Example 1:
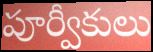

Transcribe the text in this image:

పూర్వీకులు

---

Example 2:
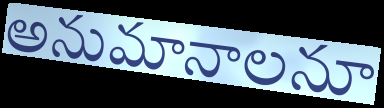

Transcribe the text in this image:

అనుమానాలనూ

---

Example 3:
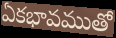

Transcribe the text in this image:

ఏకభావముతో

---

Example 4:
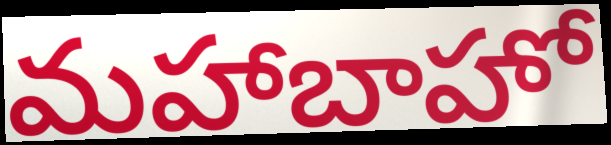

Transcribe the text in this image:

మహాబాహో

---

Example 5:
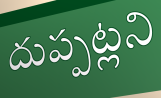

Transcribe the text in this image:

దుప్పట్లని